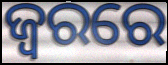
ଜ୍ବରରେ